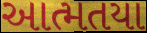
આત્મતયા